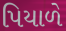
પિયાળે